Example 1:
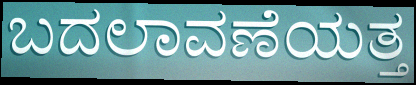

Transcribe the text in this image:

ಬದಲಾವಣೆಯತ್ತ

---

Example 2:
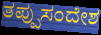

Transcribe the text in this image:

ತಪ್ಪುಸಂದೇಶ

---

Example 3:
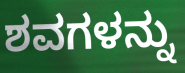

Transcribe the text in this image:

ಶವಗಳನ್ನು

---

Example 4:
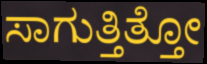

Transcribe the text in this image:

ಸಾಗುತ್ತಿತ್ತೋ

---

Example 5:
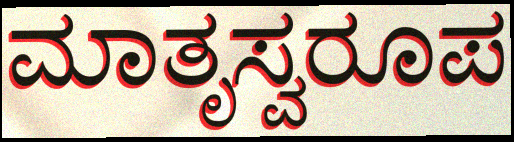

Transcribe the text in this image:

ಮಾತೃಸ್ವರೂಪ